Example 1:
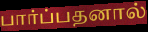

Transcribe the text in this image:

பார்ப்பதனால்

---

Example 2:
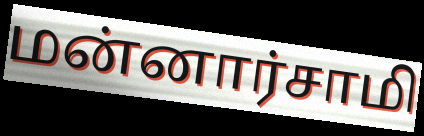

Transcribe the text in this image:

மன்னார்சாமி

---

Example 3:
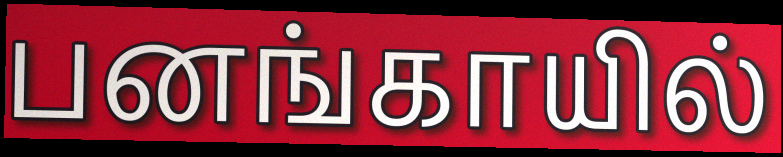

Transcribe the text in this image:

பனங்காயில்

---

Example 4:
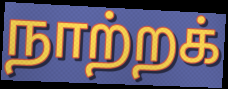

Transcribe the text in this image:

நாற்றக்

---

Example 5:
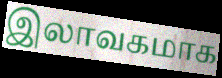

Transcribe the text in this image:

இலாவகமாக